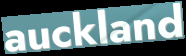
auckland